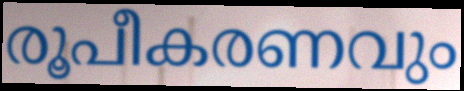
രൂപീകരണവും